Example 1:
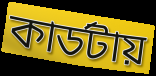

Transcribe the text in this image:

কার্ডটায়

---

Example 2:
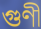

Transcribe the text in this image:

গুণী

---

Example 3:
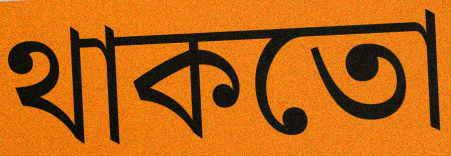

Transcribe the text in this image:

থাকতো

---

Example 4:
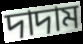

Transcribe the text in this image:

দাদাম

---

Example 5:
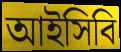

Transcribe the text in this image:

আইসিবি